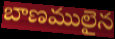
బాణములైన